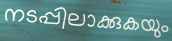
നടപ്പിലാക്കുകയും